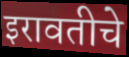
इरावतीचे